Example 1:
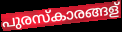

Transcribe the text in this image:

പുരസ്കാരങ്ങള്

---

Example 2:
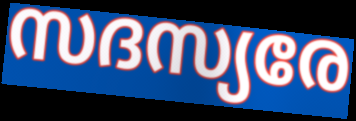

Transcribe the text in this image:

സദസ്യരേ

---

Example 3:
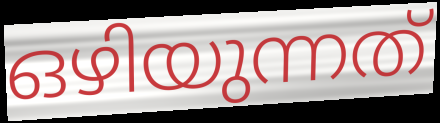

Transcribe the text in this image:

ഒഴിയുന്നത്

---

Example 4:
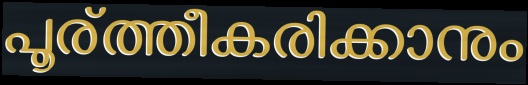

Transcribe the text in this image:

പൂര്ത്തീകരിക്കാനും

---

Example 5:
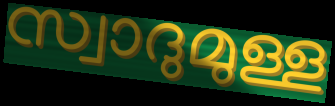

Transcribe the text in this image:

സ്വാദുമുള്ള